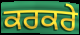
ਕਰਕਰੇ